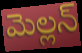
మెల్లన్